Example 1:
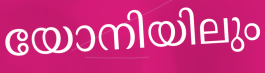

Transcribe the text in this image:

യോനിയിലും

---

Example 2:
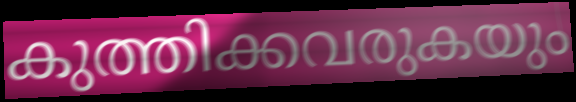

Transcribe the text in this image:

കുത്തിക്കവരുകയും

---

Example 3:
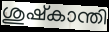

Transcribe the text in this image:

ശുഷ്കാന്തി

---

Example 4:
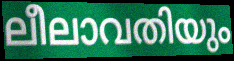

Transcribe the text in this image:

ലീലാവതിയും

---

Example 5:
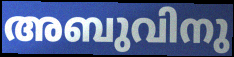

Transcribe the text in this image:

അബുവിനു